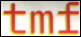
tmf